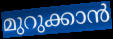
മുറുക്കാൻ